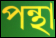
পন্থা